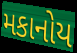
મકાનોય